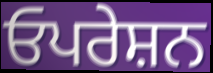
ਓਪਰੇਸ਼ਨ